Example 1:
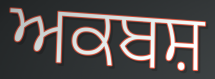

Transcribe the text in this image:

ਅਕਬਸ਼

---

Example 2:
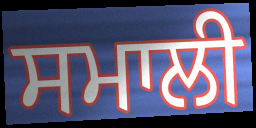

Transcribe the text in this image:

ਸਮਾਲੀ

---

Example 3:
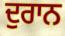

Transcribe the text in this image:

ਦੁਰਾਨ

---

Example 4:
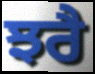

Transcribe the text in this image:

ਝਰੈ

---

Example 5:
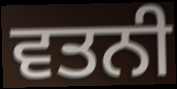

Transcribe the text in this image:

ਵਤਨੀ